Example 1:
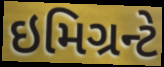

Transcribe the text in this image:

ઇમિગ્રન્ટે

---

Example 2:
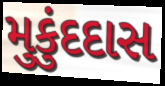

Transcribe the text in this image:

મુકુંદદાસ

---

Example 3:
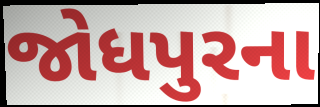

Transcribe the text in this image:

જોધપુરના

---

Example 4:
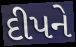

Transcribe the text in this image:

દીપને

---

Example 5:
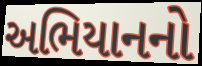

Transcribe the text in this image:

અભિયાનનો